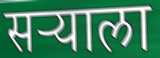
सऱ्याला